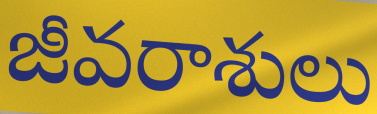
జీవరాశులు